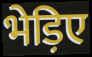
भेड़िए